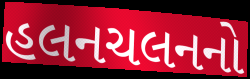
હલનચલનનો